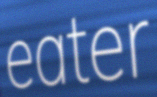
eater